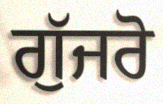
ਗੁੱਜਰੋ